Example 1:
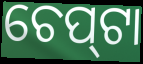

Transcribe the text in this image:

ଚେପ୍‌ଟା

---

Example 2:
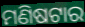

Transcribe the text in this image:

ମଣିଷଟାର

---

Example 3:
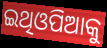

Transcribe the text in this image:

ଇଥିଓପିଆକୁ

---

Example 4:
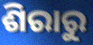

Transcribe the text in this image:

ଶିରାରୁ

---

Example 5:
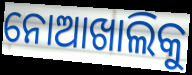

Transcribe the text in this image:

ନୋଆଖାଲିକୁ